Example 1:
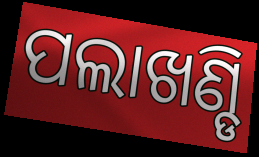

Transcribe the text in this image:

ପଲାଖଣ୍ଡି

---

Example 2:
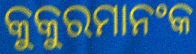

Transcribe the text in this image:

କୁକୁରମାନଂକ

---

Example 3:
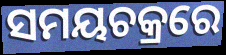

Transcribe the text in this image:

ସମୟଚକ୍ରରେ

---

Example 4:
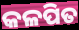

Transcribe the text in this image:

କଳପିତ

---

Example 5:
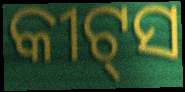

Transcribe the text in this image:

କୀଟ୍‌ସ